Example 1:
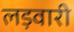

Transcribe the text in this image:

लड़वारी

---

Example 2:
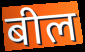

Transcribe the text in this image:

बील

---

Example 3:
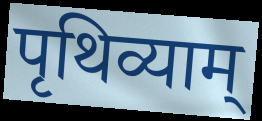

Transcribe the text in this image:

पृथिव्याम्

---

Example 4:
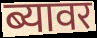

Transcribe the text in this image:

ब्यावर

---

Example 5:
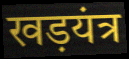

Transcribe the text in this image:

खड़यंत्र